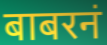
बाबरनं